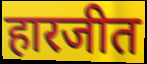
हारजीत